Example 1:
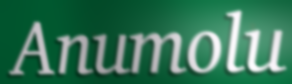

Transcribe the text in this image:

Anumolu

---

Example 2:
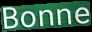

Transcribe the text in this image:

Bonne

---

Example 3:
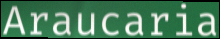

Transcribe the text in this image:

Araucaria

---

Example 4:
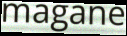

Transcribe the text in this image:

magane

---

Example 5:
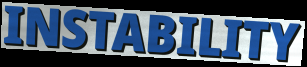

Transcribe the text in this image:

INSTABILITY